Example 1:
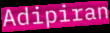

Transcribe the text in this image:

Adipiran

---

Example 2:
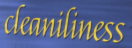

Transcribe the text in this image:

cleaniliness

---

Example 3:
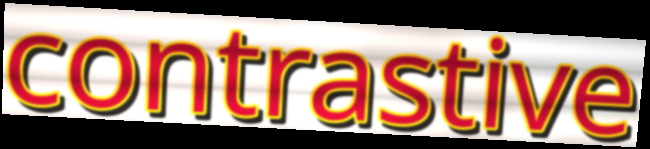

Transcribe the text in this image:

contrastive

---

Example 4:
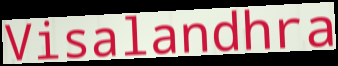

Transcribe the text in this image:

Visalandhra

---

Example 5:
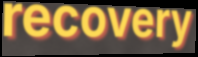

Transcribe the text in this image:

recovery